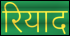
रियाद